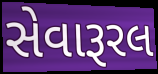
સેવારૂરલ